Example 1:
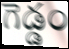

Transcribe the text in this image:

గెడ్డం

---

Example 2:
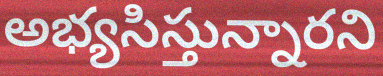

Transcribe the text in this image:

అభ్యసిస్తున్నారని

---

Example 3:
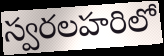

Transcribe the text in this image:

స్వరలహరిలో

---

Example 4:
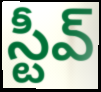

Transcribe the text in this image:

స్టీవ్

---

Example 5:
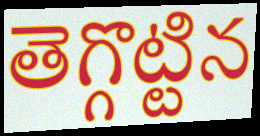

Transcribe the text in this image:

తెగ్గొట్టిన